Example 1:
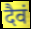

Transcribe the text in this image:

दैवं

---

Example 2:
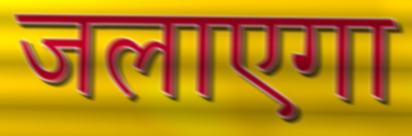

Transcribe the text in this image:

जलाएगा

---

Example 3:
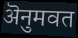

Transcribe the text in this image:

ऄनुमवत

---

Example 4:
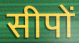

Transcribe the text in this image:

सीपों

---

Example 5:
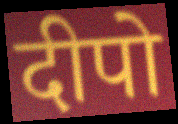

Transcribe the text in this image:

दीपो